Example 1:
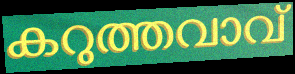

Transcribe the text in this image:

കറുത്തവാവ്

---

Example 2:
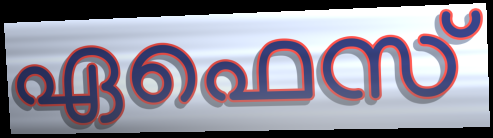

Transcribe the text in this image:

ഏഫെസ്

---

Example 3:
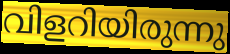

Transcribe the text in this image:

വിളറിയിരുന്നു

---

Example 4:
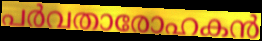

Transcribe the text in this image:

പർവതാരോഹകൻ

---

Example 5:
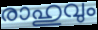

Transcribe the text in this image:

രാഹുവും